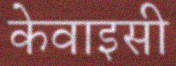
केवाइसी